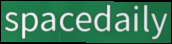
spacedaily